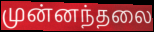
முன்னந்தலை